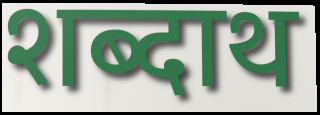
शब्दाथ